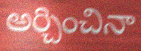
అర్చించినా